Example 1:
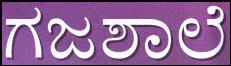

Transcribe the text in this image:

ಗಜಶಾಲೆ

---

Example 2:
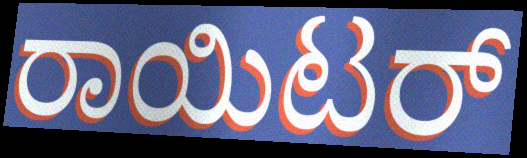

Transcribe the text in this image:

ರಾಯಿಟರ್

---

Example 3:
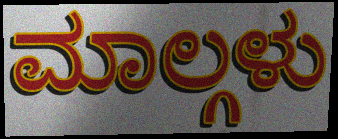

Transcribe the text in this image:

ಮಾಲ್ಗಳು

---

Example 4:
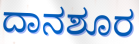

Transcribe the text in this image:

ದಾನಶೂರ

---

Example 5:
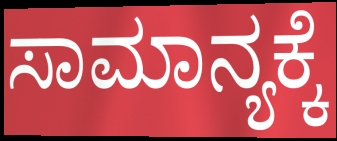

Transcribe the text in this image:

ಸಾಮಾನ್ಯಕ್ಕೆ